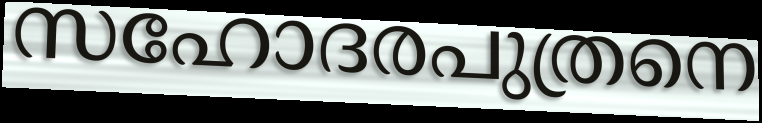
സഹോദരപുത്രനെ